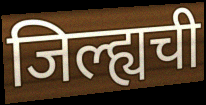
जिल्ह्यची